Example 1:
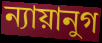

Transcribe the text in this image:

ন্যায়ানুগ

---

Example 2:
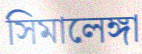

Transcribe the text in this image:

সিমালেঙ্গা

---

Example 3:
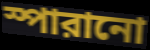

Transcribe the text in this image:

স্পারানো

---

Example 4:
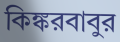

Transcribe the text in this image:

কিঙ্করবাবুর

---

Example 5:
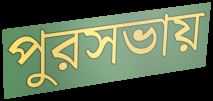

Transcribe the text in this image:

পুরসভায়